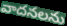
వాదనలను